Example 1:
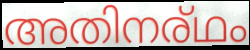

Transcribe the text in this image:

അതിനര്ഥം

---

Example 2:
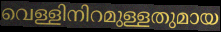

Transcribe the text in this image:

വെള്ളിനിറമുള്ളതുമായ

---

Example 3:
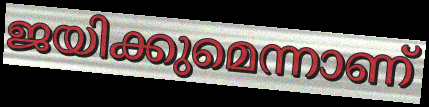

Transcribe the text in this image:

ജയിക്കുമെന്നാണ്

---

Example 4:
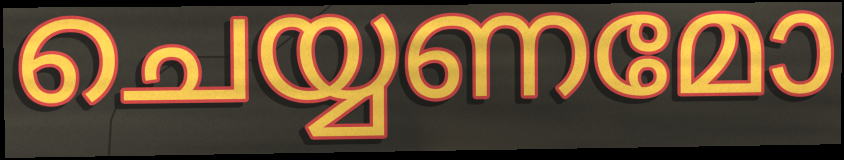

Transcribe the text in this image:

ചെയ്യണമോ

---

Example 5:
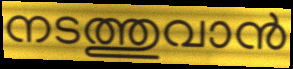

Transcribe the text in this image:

നടത്തുവാൻ